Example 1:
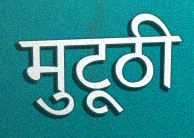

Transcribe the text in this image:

मुटूठी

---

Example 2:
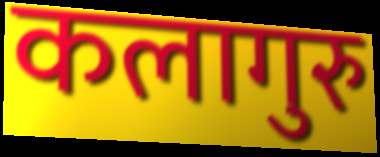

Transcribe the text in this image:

कलागुरु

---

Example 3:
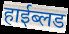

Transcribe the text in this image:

हाईब्लड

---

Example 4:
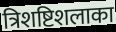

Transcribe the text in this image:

त्रिशष्टिशलाका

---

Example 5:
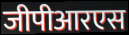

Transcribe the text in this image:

जीपीआरएस